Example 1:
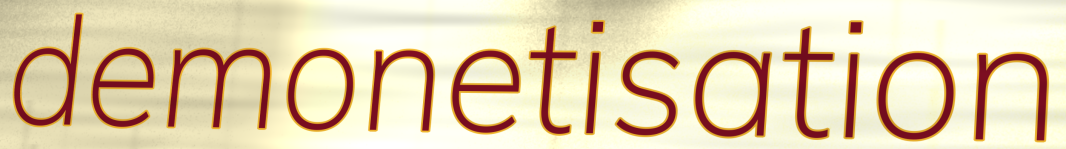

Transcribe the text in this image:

demonetisation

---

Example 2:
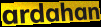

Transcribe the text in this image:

ardahan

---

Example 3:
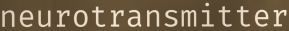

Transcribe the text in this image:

neurotransmitter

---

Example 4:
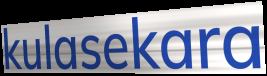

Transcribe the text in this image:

kulasekara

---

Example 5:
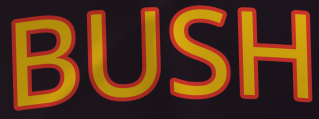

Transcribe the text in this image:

BUSH